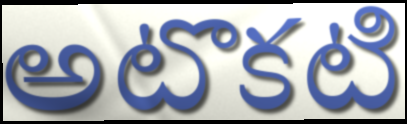
అటొకటి